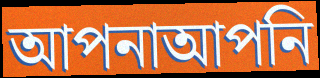
আপনাআপনি